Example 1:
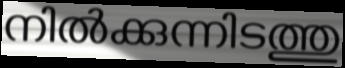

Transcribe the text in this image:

നിൽക്കുന്നിടത്തു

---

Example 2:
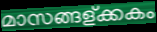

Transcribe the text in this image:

മാസങ്ങള്ക്കകം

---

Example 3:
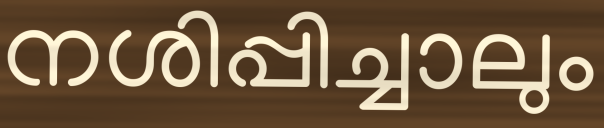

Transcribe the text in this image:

നശിപ്പിച്ചാലും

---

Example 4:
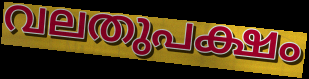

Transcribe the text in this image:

വലതുപക്ഷം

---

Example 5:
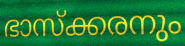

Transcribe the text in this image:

ഭാസ്ക്കരനും